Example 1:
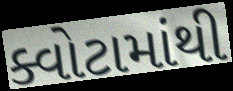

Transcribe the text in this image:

ક્વોટામાંથી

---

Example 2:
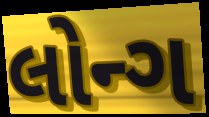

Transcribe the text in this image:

લોન્ગ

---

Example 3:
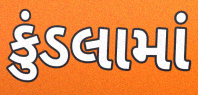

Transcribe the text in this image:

કુંડલામાં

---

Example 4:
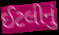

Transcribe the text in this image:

ઈટલીનું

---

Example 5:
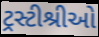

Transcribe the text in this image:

ટ્રસ્ટીશ્રીઓ